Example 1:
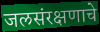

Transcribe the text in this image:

जलसंरक्षणाचे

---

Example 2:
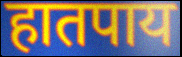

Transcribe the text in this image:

हातपाय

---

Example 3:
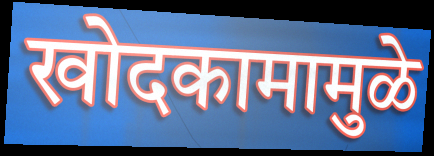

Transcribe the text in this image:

खोदकामामुळे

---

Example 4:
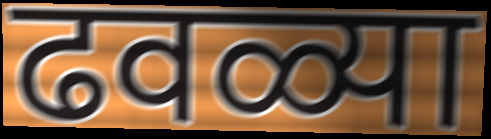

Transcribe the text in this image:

ढवळ्या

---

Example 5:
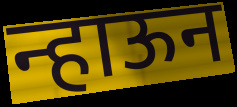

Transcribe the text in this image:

न्हाऊन